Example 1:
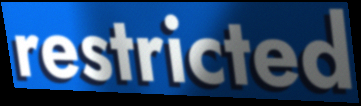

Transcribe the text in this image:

restricted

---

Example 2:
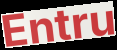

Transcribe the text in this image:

Entru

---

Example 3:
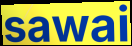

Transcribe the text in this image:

sawai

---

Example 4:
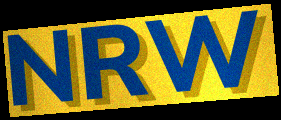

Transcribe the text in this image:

NRW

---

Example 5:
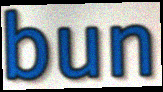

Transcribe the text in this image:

bun